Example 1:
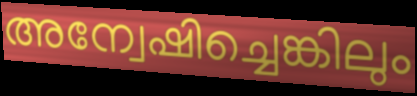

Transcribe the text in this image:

അന്വേഷിച്ചെങ്കിലും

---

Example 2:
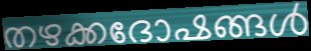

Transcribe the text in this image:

തഴക്കദോഷങ്ങൾ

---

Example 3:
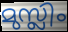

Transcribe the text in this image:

മുസ്ലിം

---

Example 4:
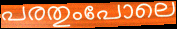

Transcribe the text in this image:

പരതുംപോലെ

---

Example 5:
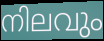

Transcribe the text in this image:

നിലവും